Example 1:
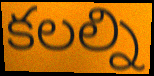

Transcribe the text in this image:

కలల్ని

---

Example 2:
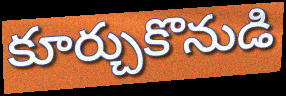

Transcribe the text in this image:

కూర్చుకొనుడి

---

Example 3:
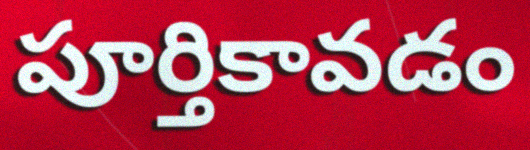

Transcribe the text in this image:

పూర్తికావడం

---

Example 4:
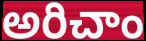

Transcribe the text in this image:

అరిచాం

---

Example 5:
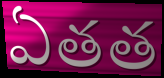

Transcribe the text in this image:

ఏతత